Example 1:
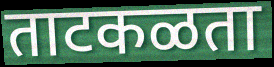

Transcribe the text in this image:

ताटकळता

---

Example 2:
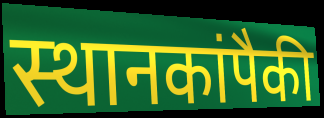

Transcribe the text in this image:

स्थानकांपैकी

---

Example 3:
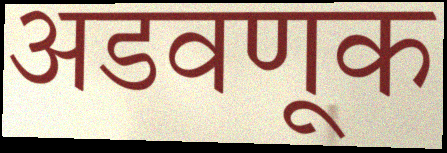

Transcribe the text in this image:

अडवणूक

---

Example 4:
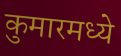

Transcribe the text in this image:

कुमारमध्ये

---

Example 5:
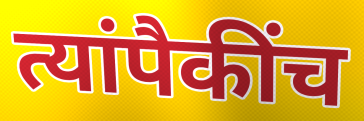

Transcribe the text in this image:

त्यांपैकींच